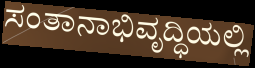
ಸಂತಾನಾಭಿವೃದ್ಧಿಯಲ್ಲಿ